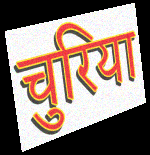
चुरिया